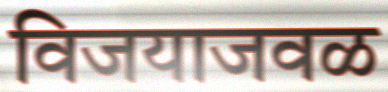
विजयाजवळ